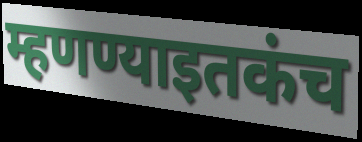
म्हणण्याइतकंच